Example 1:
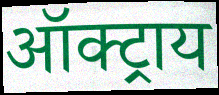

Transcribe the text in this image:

ऑक्ट्राय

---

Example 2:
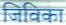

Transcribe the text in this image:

जिविका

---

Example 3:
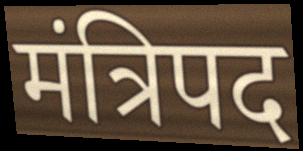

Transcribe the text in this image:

मंत्रिपद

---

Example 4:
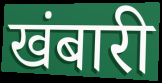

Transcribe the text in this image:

खंबारी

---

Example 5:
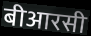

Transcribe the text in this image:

बीआरसी